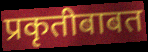
प्रकृतीबाबत